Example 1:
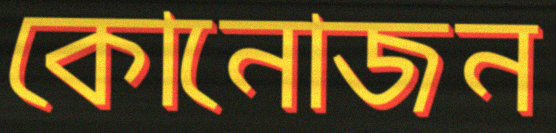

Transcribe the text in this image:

কোনোজন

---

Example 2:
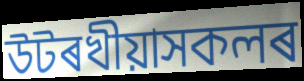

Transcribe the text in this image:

উটৰখীয়াসকলৰ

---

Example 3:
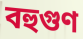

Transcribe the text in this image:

বহুগুণ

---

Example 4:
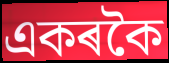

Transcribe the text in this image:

একৰকৈ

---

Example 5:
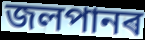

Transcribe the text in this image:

জলপানৰ